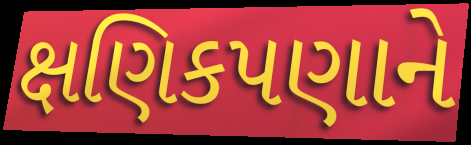
ક્ષણિકપણાને